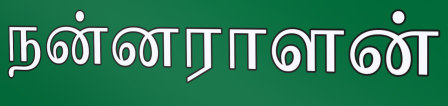
நன்னராளன்